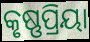
କୃଷ୍ଣପ୍ରିୟା